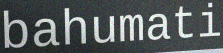
bahumati